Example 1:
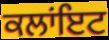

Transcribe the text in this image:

ਕਲਾਂਇਟ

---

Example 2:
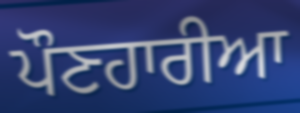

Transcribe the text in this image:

ਪੌਣਹਾਰੀਆ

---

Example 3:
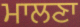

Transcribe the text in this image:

ਮਾਲਣਾ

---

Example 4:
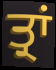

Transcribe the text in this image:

ਤ੍ਰਾਂ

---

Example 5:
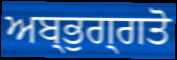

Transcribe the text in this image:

ਅਬ੍ਭੁਗ੍ਗਤੋ